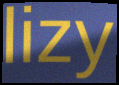
lizy